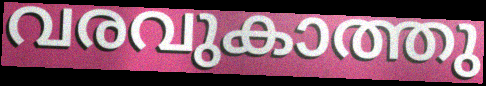
വരവുകാത്തു